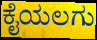
ಕೈಯಲಗು